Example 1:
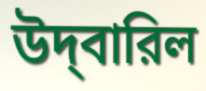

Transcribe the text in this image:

উদ্‌বারিল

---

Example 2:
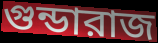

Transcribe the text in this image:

গুন্ডারাজ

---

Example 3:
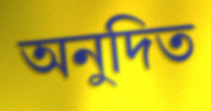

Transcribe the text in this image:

অনুদিত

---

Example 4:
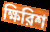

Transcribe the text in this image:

ক্ষিরিশ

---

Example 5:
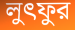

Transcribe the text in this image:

লুৎফুর